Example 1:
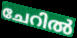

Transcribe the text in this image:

ചേറിൽ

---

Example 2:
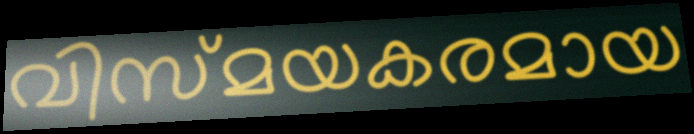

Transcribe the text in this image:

വിസ്മയകരമായ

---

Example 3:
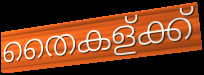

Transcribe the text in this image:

തൈകള്ക്ക്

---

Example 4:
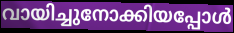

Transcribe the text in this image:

വായിച്ചുനോക്കിയപ്പോൾ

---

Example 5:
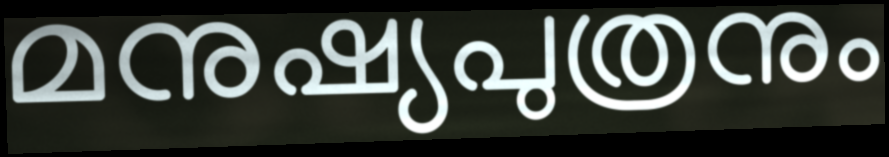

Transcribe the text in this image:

മനുഷ്യപുത്രനും